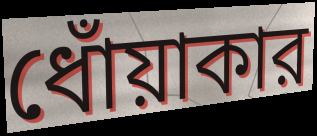
ধোঁয়াকার